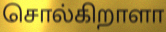
சொல்கிறாளா